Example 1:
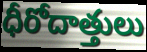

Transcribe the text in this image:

ధీరోదాత్తులు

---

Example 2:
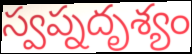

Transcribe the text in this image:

స్వప్నదృశ్యం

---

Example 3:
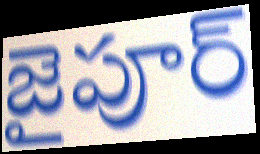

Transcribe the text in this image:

జైపూర్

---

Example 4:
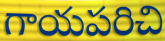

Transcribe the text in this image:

గాయపరిచి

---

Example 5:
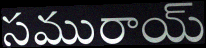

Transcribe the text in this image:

సమురాయ్